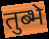
तुब्भे